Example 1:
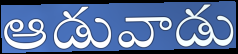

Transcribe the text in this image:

ఆడువాడు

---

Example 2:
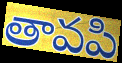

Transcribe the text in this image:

తావపి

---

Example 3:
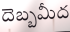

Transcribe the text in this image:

దెబ్బమీద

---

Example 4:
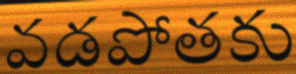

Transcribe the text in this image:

వడపోతకు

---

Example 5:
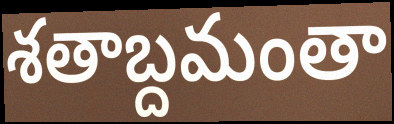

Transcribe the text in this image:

శతాబ్దమంతా